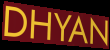
DHYAN